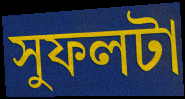
সুফলটা